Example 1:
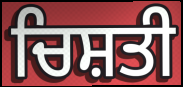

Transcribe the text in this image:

ਚਿਸ਼ਤੀ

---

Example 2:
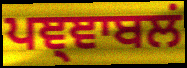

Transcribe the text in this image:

ਪਞ੍ਞਾਬਲਂ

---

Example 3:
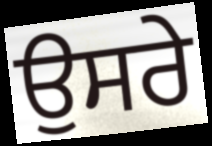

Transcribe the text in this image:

ਉਸਰੇ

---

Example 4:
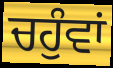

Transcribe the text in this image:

ਚਹੁੰਵਾਂ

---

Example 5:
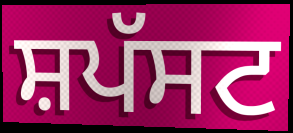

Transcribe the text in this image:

ਸ਼ਪੱਸਟ